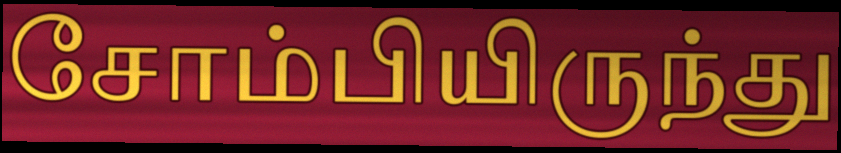
சோம்பியிருந்து